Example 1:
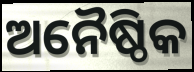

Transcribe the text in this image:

ଅନୈଷ୍ଠିକ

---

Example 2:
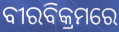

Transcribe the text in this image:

ବୀରବିକ୍ରମରେ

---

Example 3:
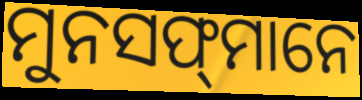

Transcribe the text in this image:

ମୁନସଫ୍‍ମାନେ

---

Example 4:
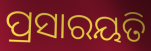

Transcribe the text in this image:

ପ୍ରସାରୟତି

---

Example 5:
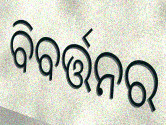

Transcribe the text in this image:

ବିବର୍ତ୍ତନର